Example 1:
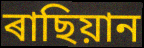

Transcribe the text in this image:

ৰাছিয়ান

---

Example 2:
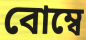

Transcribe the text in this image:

বোম্বে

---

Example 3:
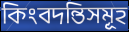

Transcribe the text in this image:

কিংবদন্তিসমূহ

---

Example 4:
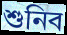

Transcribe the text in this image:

শুনিব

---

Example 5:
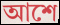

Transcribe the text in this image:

আশে